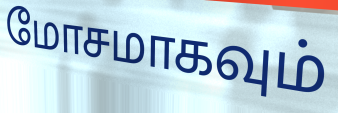
மோசமாகவும்